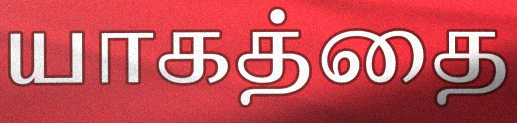
யாகத்தை